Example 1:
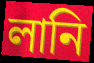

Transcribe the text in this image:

লানি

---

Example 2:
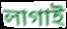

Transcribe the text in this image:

লাগাই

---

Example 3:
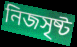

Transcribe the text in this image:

নিজসৃষ্ট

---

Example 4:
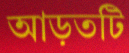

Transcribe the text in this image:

আড়তটি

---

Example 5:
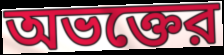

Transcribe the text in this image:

অভক্তের